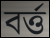
বর্ত্ত